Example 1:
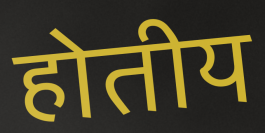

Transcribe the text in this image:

होतीय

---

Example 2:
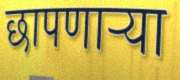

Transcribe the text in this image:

छापणाऱ्या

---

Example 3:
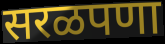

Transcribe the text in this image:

सरळपणा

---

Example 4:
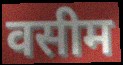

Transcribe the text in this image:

वसीम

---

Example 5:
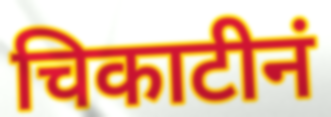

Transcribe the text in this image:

चिकाटीनं